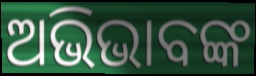
ଅଭିଭାବଙ୍କ